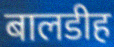
बालडीह